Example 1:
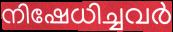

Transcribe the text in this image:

നിഷേധിച്ചവർ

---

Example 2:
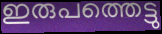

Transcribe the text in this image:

ഇരുപത്തെട്ടു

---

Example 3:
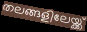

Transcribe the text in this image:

തലങ്ങളിലേയ്ക്ക്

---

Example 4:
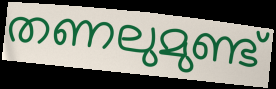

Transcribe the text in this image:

തണലുമുണ്ട്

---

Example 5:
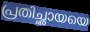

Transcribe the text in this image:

പ്രതിച്ഛായയെ